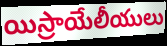
యిస్రాయేలీయులు